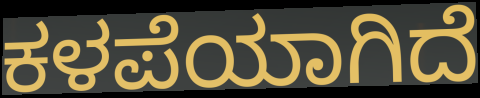
ಕಳಪೆಯಾಗಿದೆ